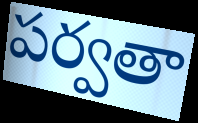
పర్వతా